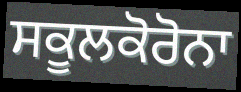
ਸਕੂਲਕੋਰੋਨਾ